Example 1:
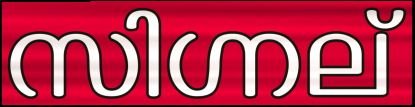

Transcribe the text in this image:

സിഗ്നല്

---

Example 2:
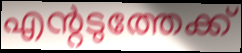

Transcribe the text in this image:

എന്റടുത്തേക്ക്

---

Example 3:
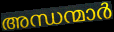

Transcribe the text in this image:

അന്ധന്മാർ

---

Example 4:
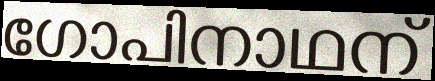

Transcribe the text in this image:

ഗോപിനാഥന്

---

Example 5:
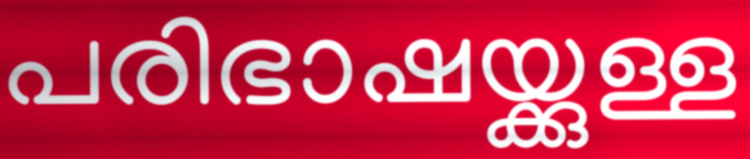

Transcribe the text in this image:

പരിഭാഷയ്ക്കുള്ള